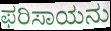
ಫರಿಸಾಯನು